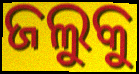
ଜଲୁକୁ